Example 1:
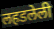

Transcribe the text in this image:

लहडलेली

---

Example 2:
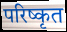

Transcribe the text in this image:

परिष्कृत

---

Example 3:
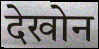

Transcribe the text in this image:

देखोन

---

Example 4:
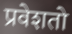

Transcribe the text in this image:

प्रवेशतो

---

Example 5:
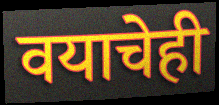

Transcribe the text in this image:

वयाचेही